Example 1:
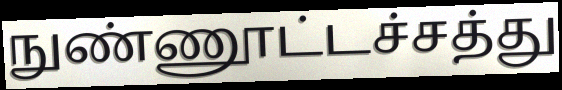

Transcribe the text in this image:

நுண்ணூட்டச்சத்து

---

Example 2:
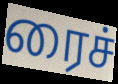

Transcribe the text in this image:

ரைச்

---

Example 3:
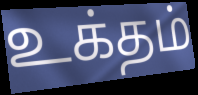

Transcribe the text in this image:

உக்தம்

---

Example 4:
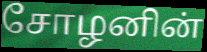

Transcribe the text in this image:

சோழனின்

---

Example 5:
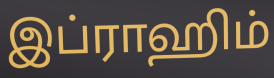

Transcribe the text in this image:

இப்ராஹிம்